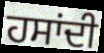
ਹਸਾਂਦੀ